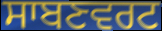
ਸਾਬਣਵਰਟ